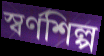
স্বর্ণশিল্প